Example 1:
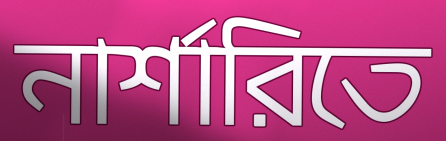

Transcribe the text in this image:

নার্শারিতে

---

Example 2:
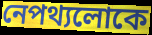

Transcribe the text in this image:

নেপথ্যলোকে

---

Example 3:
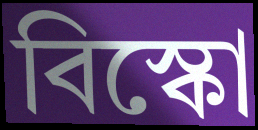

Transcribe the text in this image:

বিস্কো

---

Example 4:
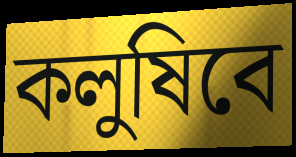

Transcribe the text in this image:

কলুষিবে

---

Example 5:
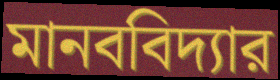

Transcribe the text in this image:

মানববিদ্যার